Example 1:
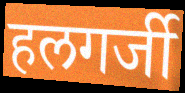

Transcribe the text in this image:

हलगर्जी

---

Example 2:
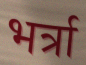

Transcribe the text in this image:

भर्त्रा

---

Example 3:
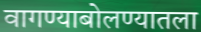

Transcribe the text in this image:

वागण्याबोलण्यातला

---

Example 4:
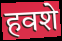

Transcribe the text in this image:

हवशे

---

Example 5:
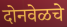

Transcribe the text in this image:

दोनवेळचे